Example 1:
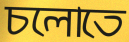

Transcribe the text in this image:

চলোতে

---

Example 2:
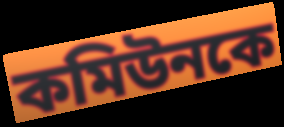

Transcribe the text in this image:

কমিউনকে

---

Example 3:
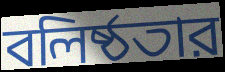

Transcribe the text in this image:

বলিষ্ঠতার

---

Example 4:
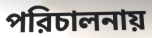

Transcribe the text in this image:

পরিচালনায়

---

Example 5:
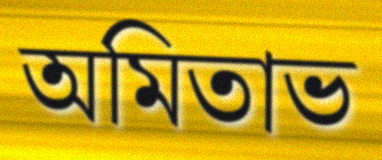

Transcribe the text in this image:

অমিতাভ